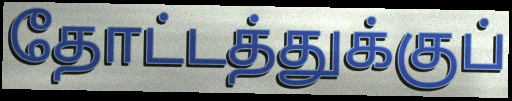
தோட்டத்துக்குப்